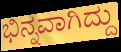
ಭಿನ್ನವಾಗಿದ್ದು